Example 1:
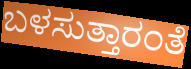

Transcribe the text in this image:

ಬಳಸುತ್ತಾರಂತೆ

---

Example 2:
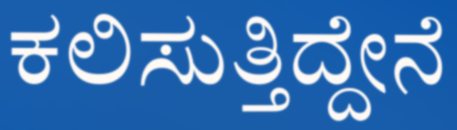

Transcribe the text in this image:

ಕಲಿಸುತ್ತಿದ್ದೇನೆ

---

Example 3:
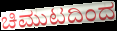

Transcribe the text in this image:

ಚಿಮುಟದಿಂದ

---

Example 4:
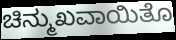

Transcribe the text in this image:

ಚಿನ್ಮುಖವಾಯಿತೊ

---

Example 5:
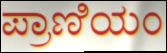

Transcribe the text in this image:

ಪ್ರಾಣಿಯಂ